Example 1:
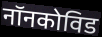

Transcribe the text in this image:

नॉनकोविड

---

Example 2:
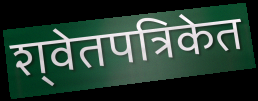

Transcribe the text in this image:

श्वेतपत्रिकेत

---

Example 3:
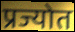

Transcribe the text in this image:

प्रज्योत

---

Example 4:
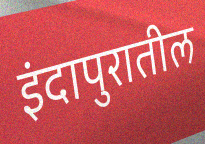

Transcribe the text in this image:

इंदापुरातील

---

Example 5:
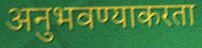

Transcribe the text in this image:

अनुभवण्याकरता